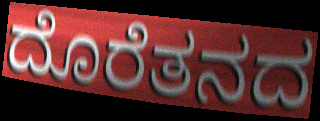
ದೊರೆತನದ